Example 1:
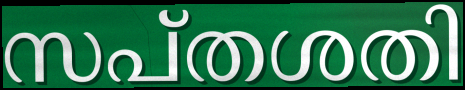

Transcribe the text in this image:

സപ്തശതി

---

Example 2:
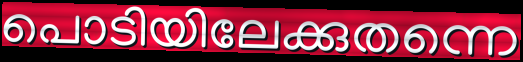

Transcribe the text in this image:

പൊടിയിലേക്കുതന്നെ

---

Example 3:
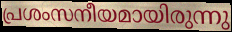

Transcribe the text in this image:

പ്രശംസനീയമായിരുന്നു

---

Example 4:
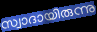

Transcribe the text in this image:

സ്വാദായിരുന്നു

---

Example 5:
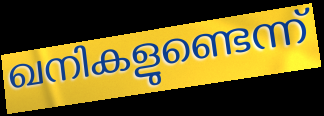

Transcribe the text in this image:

ഖനികളുണ്ടെന്ന്